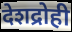
देशद्रोही